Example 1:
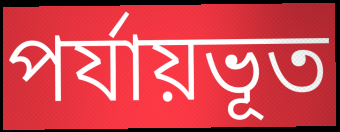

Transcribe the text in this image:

পর্যায়ভূত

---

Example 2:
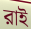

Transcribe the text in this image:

রাই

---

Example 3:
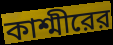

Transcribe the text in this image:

কাশ্মীরের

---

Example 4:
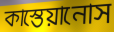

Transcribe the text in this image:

কাস্তেয়ানোস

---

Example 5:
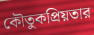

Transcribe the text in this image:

কৌতুকপ্রিয়তার